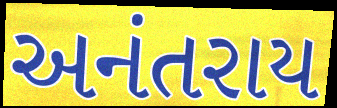
અનંતરાય